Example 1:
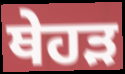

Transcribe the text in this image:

ਥੇਹੜ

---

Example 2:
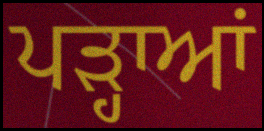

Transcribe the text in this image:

ਪੜ੍ਹਾਆਂ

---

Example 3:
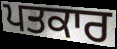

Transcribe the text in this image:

ਪਤਕਾਰ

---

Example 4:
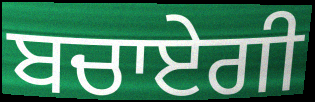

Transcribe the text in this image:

ਬਚਾਏਗੀ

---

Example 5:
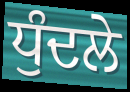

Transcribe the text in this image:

ਧੁੰਦਲੇ